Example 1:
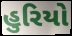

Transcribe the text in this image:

હુરિયો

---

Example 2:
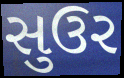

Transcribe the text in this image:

સુઉર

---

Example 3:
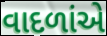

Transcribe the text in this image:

વાદળાંએ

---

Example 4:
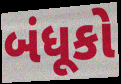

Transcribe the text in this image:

બંધૂકો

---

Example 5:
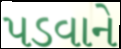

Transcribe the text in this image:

પડવાને